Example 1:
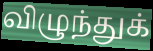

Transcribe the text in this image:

விழுந்துக்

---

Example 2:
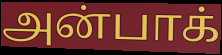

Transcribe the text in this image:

அன்பாக்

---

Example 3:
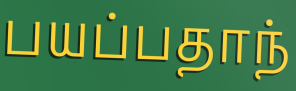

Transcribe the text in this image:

பயப்பதாந்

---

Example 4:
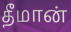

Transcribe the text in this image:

தீமான்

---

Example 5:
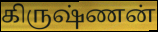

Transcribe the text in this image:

கிருஷ்ணன்